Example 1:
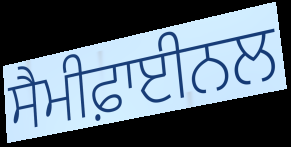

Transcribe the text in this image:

ਸੈਮੀਫ਼ਾਈਨਲ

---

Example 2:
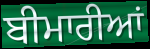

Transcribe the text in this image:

ਬੀਮਾਰੀਆਂ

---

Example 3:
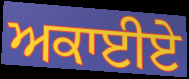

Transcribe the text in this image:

ਅਕਾਈਏ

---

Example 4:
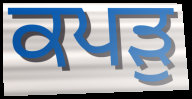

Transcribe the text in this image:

ਕਪੜੁ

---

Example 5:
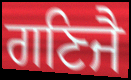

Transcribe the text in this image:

ਗਣਿਜੈ